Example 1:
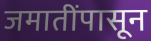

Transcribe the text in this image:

जमातींपासून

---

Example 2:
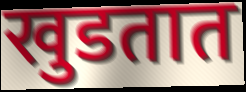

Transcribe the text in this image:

खुडतात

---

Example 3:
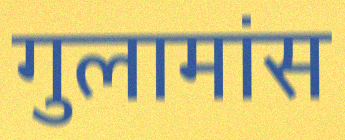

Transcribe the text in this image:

गुलामांस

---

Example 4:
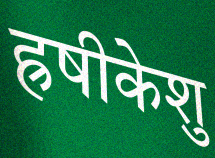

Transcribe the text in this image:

ह्रषीकेशु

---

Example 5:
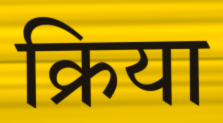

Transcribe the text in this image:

क्रिया